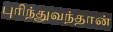
புரிந்துவந்தான்